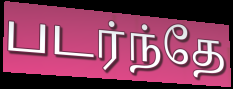
படர்ந்தே